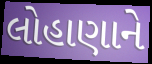
લોહાણાને